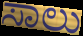
ಸಾಲು